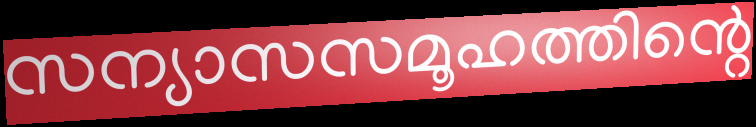
സന്യാസസമൂഹത്തിന്റെ